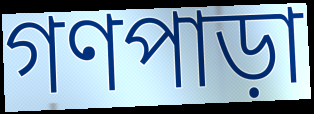
গণপাড়া